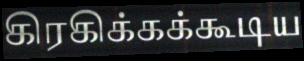
கிரகிக்கக்கூடிய